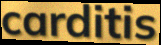
carditis